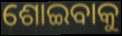
ଶୋଇବାକୁ